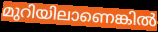
മുറിയിലാണെങ്കിൽ